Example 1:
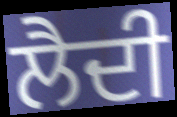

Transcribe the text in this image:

ਲੈਦੀ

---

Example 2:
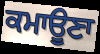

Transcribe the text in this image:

ਕਮਾਊਣਾ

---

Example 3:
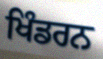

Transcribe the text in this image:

ਖਿੰਡਰਨ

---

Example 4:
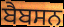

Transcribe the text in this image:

ਬੈਬਸਨ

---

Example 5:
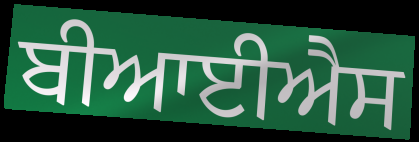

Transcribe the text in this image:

ਬੀਆਈਐਸ